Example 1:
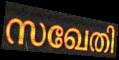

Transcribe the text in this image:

സഖേതി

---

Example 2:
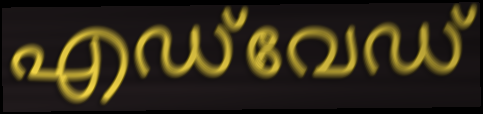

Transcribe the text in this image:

എഡ്‌വേഡ്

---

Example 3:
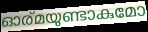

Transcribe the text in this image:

ഓര്മയുണ്ടാകുമോ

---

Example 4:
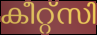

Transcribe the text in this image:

കീറ്റ്സി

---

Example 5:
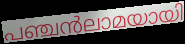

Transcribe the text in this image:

പഞ്ചൻലാമയായി